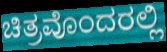
ಚಿತ್ರವೊಂದರಲ್ಲಿ